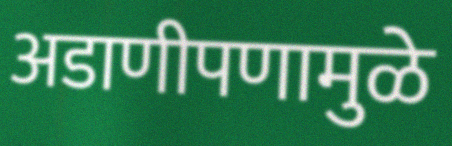
अडाणीपणामुळे